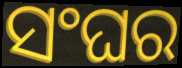
ସଂଘର